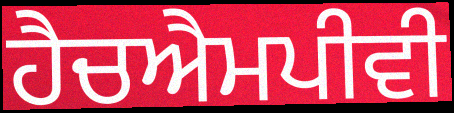
ਹੈਚਐਮਪੀਵੀ